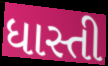
ધાસ્તી